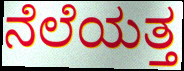
ನೆಲೆಯತ್ತ